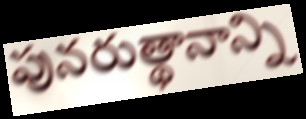
పునరుత్థానాన్ని